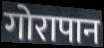
गोरापान